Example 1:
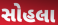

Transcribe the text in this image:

સોહલા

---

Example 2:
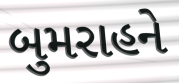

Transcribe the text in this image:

બુમરાહને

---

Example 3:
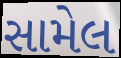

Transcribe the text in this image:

સામેલ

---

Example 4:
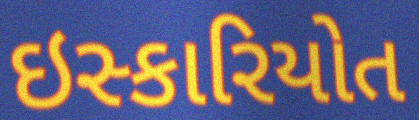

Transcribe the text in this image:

ઇસ્કારિયોત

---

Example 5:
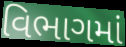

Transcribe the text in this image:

વિભાગમાં